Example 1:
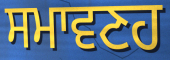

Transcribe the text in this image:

ਸਮਾਵਣਹ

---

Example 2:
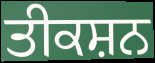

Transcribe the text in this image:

ਤੀਕਸ਼ਨ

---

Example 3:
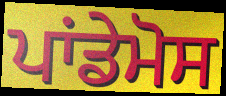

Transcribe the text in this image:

ਪਾਂਡੇਮੋਸ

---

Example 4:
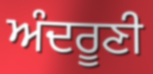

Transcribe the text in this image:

ਅੰਦਰੂਣੀ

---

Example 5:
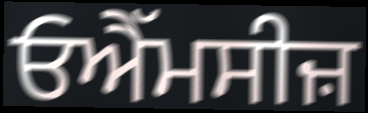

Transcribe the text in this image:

ਓਐੱਮਸੀਜ਼